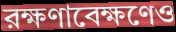
রক্ষণাবেক্ষণেও